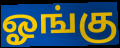
ஓங்கு